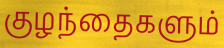
குழந்தைகளும்